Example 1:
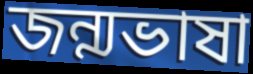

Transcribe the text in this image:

জন্মভাষা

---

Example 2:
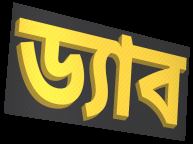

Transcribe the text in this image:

ড্যাব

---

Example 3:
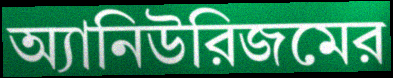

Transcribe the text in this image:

অ্যানিউরিজমের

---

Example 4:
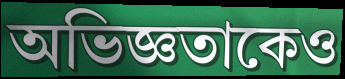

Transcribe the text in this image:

অভিজ্ঞতাকেও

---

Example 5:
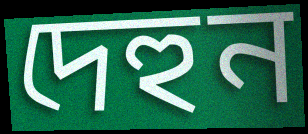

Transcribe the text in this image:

দেহুন